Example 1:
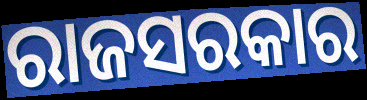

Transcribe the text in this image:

ରାଜସରକାର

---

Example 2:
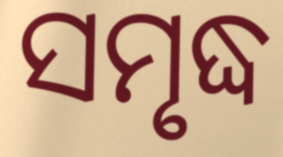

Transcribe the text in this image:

ସମୃଦ୍ଧ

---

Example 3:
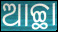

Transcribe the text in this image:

ଆଚ୍ଛା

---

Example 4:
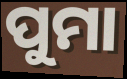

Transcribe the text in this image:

ପୁମା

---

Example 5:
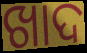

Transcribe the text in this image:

ଖାଦ